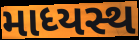
માધ્યસ્થ